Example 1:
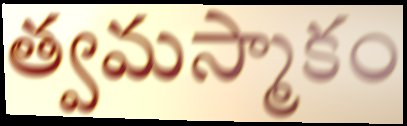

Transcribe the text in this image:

త్వమస్మాకం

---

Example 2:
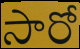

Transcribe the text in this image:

సారో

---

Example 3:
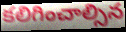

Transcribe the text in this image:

కలిగించాల్సిన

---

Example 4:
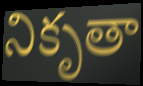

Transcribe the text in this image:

నికృతా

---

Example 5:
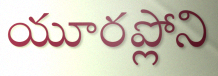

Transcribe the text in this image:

యూరప్లోని